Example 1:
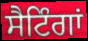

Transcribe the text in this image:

ਸੈਟਿੰਗਾਂ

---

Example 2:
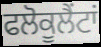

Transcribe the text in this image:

ਫਲੋਕੂਲੈਂਟਾਂ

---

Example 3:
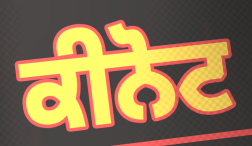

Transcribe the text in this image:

ਕੀਨੋਟ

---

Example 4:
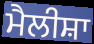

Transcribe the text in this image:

ਮੈਲੀਸ਼ਾ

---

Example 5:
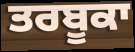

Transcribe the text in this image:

ਤਰਬੂਕਾ